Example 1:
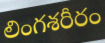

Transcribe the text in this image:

లింగశరీరం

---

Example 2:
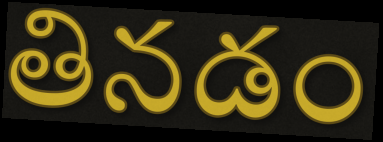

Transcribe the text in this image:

తినడం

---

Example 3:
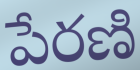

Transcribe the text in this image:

పేరణి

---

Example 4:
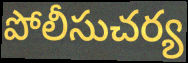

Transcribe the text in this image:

పోలీసుచర్య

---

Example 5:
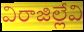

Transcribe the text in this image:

విరాజిల్లేవి